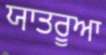
ਯਾਤਰੂਆ